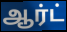
ஆர்ட்